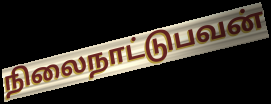
நிலைநாட்டுபவன்